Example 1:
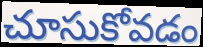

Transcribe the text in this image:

చూసుకోవడం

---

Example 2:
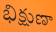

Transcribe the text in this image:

భిక్షుణా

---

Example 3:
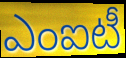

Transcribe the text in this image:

ఎంఐటీ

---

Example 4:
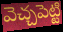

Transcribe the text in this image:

వెచ్చపెట్టి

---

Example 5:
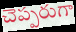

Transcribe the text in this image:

చెప్పరుగా